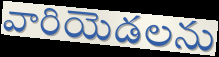
వారియెడలను